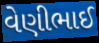
વેણીભાઈ